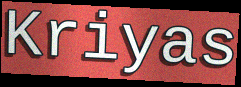
Kriyas